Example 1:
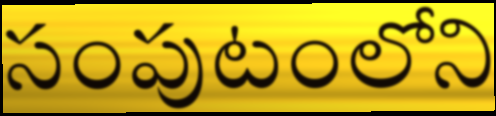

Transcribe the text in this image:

సంపుటంలోని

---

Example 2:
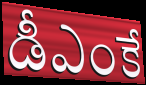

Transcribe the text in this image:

డీఎంకే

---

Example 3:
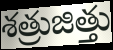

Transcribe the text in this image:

శత్రుజిత్తు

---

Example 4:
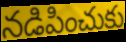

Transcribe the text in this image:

నడిపించుకు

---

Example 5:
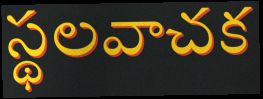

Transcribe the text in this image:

స్థలవాచక